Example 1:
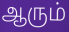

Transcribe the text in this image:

ஆரும்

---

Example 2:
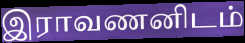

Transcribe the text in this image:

இராவணனிடம்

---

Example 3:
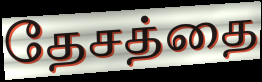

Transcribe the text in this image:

தேசத்தை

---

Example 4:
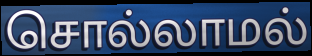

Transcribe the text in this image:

சொல்லாமல்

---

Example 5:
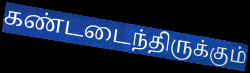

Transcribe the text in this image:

கண்டடைந்திருக்கும்